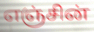
எஞ்சின்